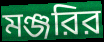
মঞ্জরির